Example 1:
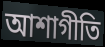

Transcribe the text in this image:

আশাগীতি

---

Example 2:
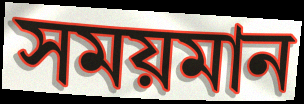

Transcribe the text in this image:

সময়মান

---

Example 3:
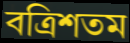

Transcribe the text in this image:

বত্রিশতম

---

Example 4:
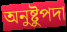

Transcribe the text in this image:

অনুষ্টুপদা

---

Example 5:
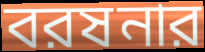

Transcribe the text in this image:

বরষনার